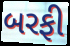
બરફી